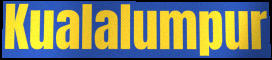
Kualalumpur